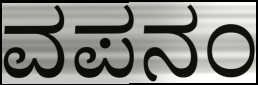
ವಪನಂ